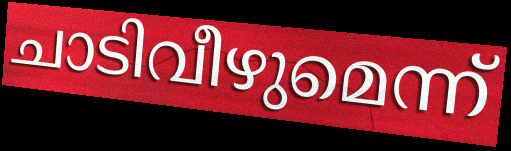
ചാടിവീഴുമെന്ന്